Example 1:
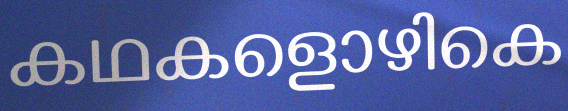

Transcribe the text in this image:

കഥകളൊഴികെ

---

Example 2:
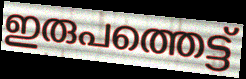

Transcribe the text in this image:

ഇരുപത്തെട്ട്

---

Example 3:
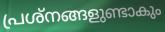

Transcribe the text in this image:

പ്രശ്നങ്ങളുണ്ടാകും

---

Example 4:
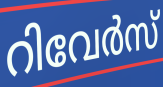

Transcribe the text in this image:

റിവേർസ്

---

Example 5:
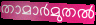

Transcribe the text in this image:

താമാർമുതൽ